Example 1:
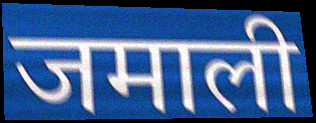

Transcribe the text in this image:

जमाली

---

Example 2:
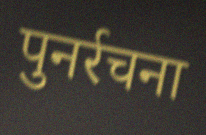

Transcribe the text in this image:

पुनर्रचना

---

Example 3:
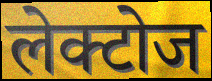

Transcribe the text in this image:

लेक्टोज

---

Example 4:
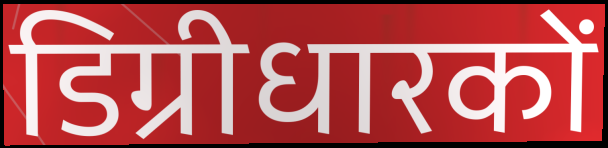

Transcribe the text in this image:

डिग्रीधारकों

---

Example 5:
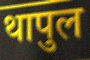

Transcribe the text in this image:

थापुल